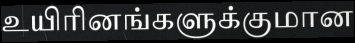
உயிரினங்களுக்குமான